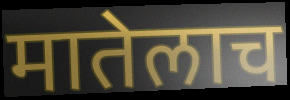
मातेलाच